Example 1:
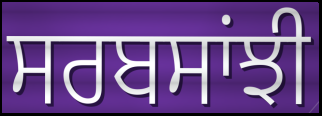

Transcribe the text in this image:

ਸਰਬਸਾਂਝੀ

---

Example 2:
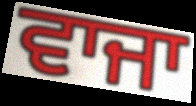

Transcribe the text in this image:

ਵਾਜਾ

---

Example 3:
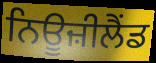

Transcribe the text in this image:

ਨਿਊਜ਼ੀਲੈਂਡ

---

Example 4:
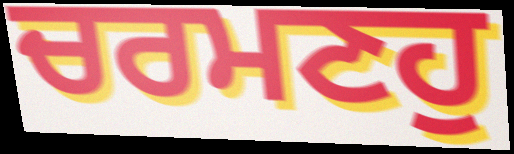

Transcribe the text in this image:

ਚਰਮਣਹੁ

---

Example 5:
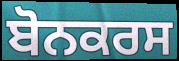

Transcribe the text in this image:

ਬੋਨਕਰਸ